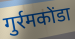
गुर्रमकोंडा